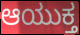
ಆಯುಕ್ತ